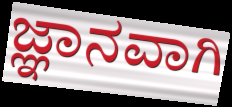
ಜ್ಞಾನವಾಗಿ